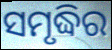
ସମୃଦ୍ଧିର